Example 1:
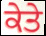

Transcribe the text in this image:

ਕੇਤੇ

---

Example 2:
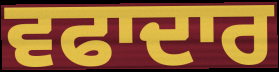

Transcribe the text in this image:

ਵਫਾਦਾਰ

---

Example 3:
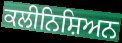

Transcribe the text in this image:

ਕਲੀਨਿਸ਼ਿਅਨ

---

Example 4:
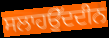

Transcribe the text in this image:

ਸਲਾਹਉੱਦਦੀਨ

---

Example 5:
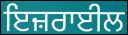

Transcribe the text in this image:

ਇਜ਼ਰਾਈਲ